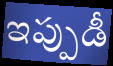
ఇప్పుడీ